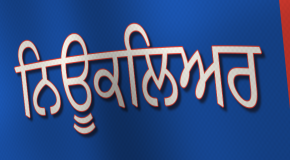
ਨਿਊਕਲਿਅਰ